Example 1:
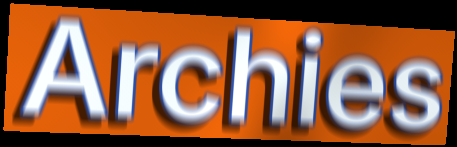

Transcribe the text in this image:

Archies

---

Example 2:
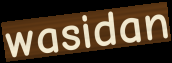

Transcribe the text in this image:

wasidan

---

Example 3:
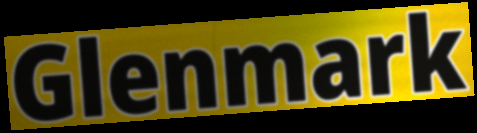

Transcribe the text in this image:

Glenmark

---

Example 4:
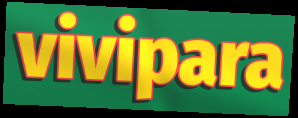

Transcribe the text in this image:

vivipara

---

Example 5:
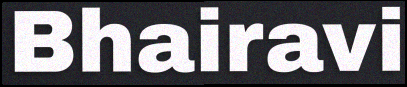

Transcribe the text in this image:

Bhairavi